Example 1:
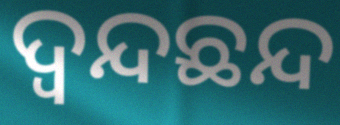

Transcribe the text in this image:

ଦ୍ୱନ୍ଦଛନ୍ଦ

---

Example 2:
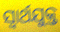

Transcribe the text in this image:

ସ୍ୱାର୍ଥଯୁକ୍ତ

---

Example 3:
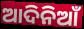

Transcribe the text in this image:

ଆଦିନିଆଁ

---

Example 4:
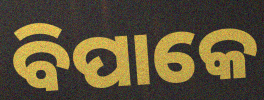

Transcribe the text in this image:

ବିପାକେ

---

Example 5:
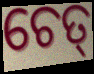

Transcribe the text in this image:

ଚେତ୍